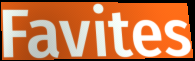
Favites